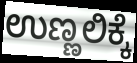
ಉಣ್ಣಲಿಕ್ಕೆ